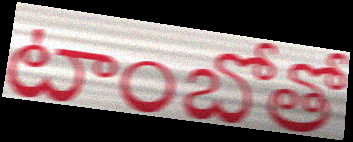
టాంబోతో